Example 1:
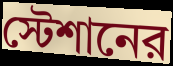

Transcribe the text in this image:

স্টেশানের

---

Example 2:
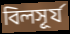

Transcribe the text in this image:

বিলসূর্য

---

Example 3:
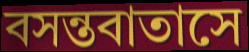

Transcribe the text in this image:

বসন্তবাতাসে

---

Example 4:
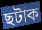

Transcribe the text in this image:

ছটাক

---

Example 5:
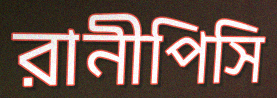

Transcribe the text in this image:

রানীপিসি